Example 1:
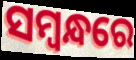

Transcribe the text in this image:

ସମ୍ୱନ୍ଧରେ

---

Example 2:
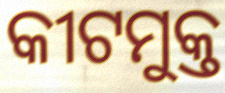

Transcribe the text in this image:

କୀଟମୁକ୍ତ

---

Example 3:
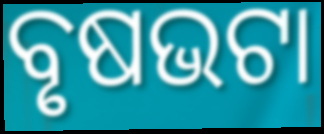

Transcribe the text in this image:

ବୃଷଭଟା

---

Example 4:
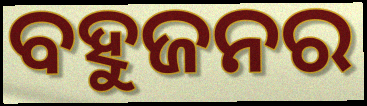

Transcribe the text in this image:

ବହୁଜନର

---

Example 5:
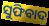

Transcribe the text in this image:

ସୁଫିବାଦ